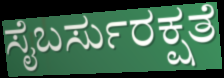
ಸೈಬರ್ಸುರಕ್ಷತೆ